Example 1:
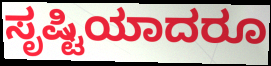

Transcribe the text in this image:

ಸೃಷ್ಟಿಯಾದರೂ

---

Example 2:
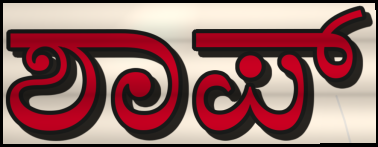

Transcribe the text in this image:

ಶಾಪ್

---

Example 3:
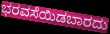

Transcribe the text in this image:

ಭರವಸೆಯಿಡಬಾರದು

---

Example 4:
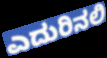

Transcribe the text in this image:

ಎದುರಿನಲಿ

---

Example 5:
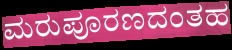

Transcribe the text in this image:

ಮರುಪೂರಣದಂತಹ